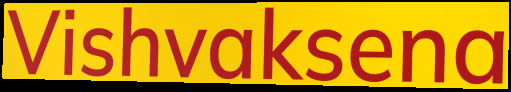
Vishvaksena